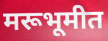
मरूभूमीत